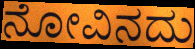
ನೋವಿನದು